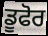
ਡੂਫੋਰ